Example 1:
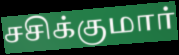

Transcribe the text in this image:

சசிக்குமார்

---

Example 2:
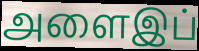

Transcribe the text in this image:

அளைஇப்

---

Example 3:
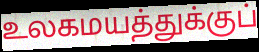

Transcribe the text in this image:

உலகமயத்துக்குப்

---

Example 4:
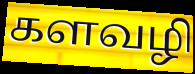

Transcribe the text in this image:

களவழி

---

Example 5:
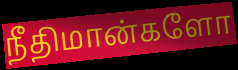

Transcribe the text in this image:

நீதிமான்களோ